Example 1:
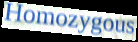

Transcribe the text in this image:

Homozygous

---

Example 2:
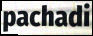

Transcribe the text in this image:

pachadi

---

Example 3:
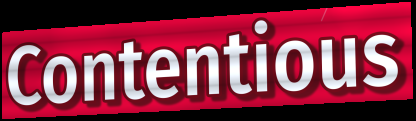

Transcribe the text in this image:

Contentious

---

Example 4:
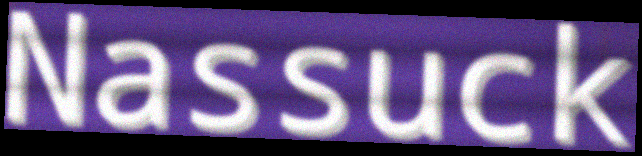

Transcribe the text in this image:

Nassuck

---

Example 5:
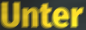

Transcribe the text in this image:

Unter